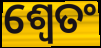
ଶ୍ଵେତଂ